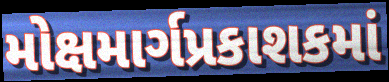
મોક્ષમાર્ગપ્રકાશકમાં